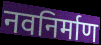
नवनिर्माण